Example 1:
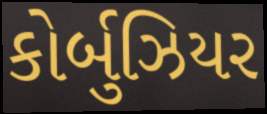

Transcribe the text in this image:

કોર્બુઝિયર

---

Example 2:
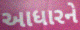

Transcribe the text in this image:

આધારને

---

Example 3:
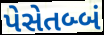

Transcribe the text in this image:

પેસેતબ્બં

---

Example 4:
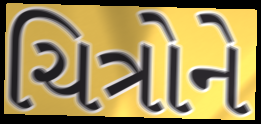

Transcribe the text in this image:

ચિત્રોને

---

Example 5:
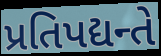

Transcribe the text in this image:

પ્રતિપદ્યન્તે